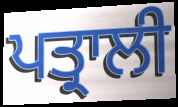
ਪਤ੍ਰਾਲੀ